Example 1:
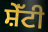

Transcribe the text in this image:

ਸ਼ੇੱਟੀ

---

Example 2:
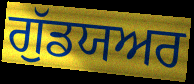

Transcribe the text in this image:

ਗੁੱਡਯਅਰ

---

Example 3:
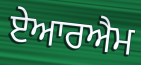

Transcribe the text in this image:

ਏਆਰਐਮ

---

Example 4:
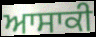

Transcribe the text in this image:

ਆਸਾਕੀ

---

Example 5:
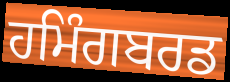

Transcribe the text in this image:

ਹਮਿੰਗਬਰਡ